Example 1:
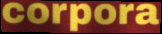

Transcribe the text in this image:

corpora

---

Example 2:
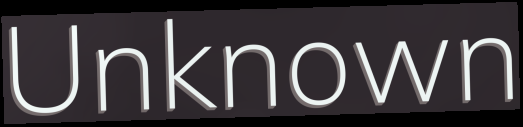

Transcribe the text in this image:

Unknown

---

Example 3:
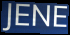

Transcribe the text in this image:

JENE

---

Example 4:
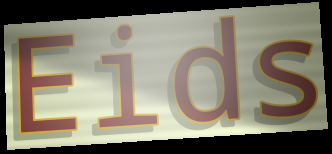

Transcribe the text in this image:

Eids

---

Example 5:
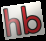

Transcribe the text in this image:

hb